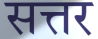
सत्तर